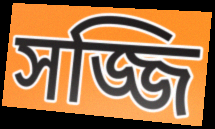
সজ্জি